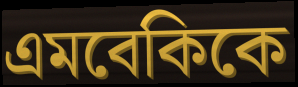
এমবেকিকে